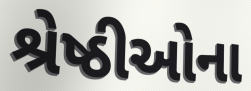
શ્રેષ્ઠીઓના